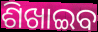
ଶିଖାଇବ